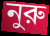
নুরু